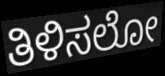
ತಿಳಿಸಲೋ